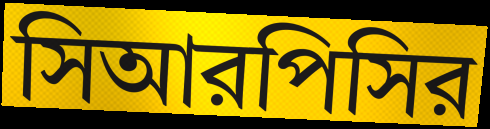
সিআরপিসির